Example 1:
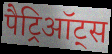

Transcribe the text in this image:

पैट्रिऑट्स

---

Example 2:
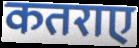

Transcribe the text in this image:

कतराए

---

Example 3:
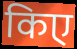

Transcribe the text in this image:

किए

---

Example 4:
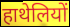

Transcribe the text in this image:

हाथेलियों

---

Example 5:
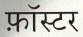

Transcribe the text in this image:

फ़ॉस्टर